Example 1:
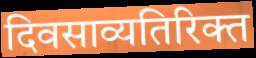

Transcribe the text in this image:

दिवसाव्यतिरिक्त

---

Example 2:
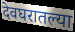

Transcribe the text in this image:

देवघरातल्या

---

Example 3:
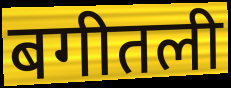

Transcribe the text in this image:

बगीतली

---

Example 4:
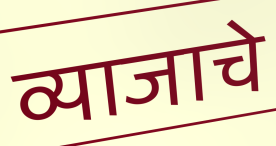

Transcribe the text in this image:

व्याजाचे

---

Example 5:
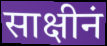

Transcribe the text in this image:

साक्षीनं